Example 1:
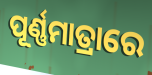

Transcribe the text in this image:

ପୂର୍ଣ୍ଣମାତ୍ରାରେ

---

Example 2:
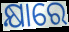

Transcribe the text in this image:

କ୍ଷାରେ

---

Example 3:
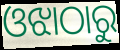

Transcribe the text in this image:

ଓଝାଠାରୁ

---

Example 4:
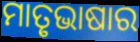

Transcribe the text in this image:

ମାତୃଭାଷାର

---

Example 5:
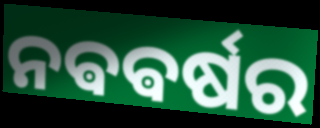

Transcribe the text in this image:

ନଵଵର୍ଷର